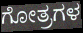
ಗೋತ್ರಗಳ